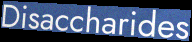
Disaccharides